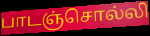
பாடஞ்சொல்லி